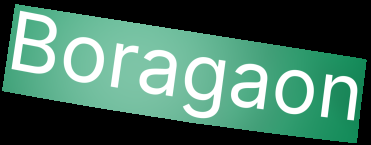
Boragaon